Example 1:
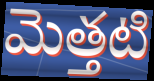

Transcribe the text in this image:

మెత్తటి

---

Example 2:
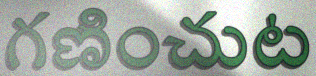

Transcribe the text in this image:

గణించుట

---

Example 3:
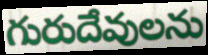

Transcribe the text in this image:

గురుదేవులను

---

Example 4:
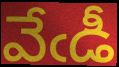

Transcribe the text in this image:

వేఁడీ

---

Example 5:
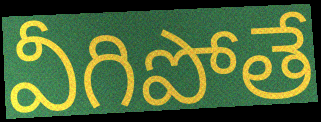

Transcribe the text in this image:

వీగిపోతే